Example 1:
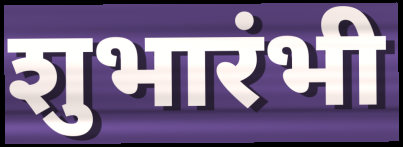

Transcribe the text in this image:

शुभारंभी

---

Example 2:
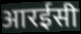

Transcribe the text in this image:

आरईसी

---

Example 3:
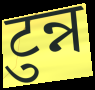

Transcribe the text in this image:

टुन्न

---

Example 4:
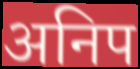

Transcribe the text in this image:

अनिप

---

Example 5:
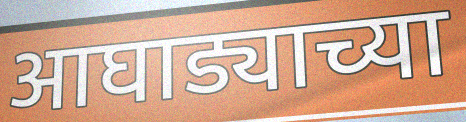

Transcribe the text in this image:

आघाड्याच्या